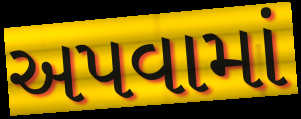
અપવામાં